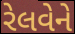
રેલવેને